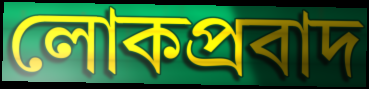
লোকপ্রবাদ